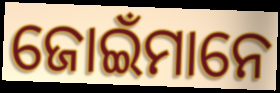
ଜୋଇଁମାନେ